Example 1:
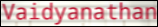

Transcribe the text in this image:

Vaidyanathan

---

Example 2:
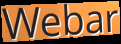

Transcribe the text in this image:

Webar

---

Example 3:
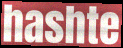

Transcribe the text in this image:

hashte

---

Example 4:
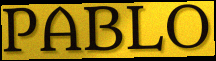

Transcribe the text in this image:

PABLO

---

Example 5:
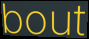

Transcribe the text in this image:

bout